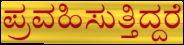
ಪ್ರವಹಿಸುತ್ತಿದ್ದರೆ